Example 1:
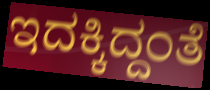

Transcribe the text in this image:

ಇದಕ್ಕಿದ್ದಂತೆ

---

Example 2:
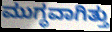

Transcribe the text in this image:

ಮುಗ್ಧವಾಗಿತ್ತು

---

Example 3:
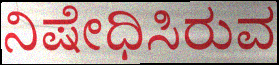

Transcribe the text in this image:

ನಿಷೇಧಿಸಿರುವ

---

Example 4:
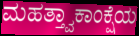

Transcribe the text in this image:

ಮಹತ್ತ್ವಾಕಾಂಕ್ಷೆಯ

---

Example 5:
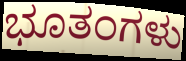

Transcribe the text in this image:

ಭೂತಂಗಳು